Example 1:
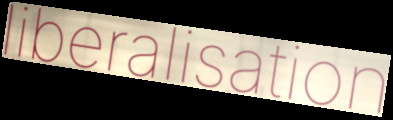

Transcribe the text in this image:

liberalisation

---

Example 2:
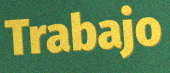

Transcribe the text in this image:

Trabajo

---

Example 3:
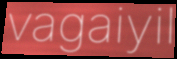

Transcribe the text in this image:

vagaiyil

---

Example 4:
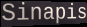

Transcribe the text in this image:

Sinapis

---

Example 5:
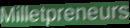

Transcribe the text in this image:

Milletpreneurs